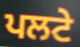
ਪਲਟੇ